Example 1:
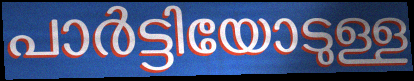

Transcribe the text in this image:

പാർട്ടിയോടുള്ള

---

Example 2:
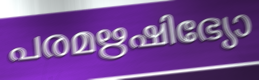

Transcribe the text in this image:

പരമഋഷിഭ്യോ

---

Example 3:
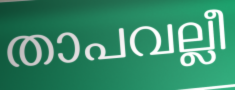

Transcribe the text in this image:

താപവല്ലീ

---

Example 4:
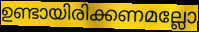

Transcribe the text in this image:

ഉണ്ടായിരിക്കണമല്ലോ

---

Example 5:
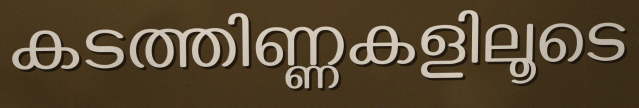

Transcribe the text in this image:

കടത്തിണ്ണകളിലൂടെ